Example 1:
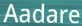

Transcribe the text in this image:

Aadare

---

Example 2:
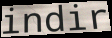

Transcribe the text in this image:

indir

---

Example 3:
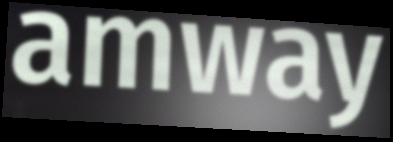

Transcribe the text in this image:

amway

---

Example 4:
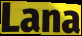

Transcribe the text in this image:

Lana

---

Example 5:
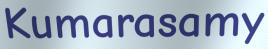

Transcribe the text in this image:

Kumarasamy